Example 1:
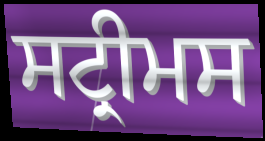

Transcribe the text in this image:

ਸਟ੍ਰੀਮਸ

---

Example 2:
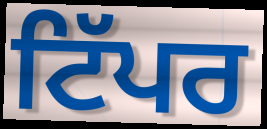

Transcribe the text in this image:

ਟਿੱਪਰ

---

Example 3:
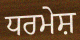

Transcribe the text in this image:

ਧਰਮੇਸ਼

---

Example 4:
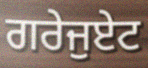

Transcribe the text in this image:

ਗਰੇਜੁਏਟ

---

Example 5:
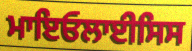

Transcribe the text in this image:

ਮਾਇਓਲਾਈਸਿਸ